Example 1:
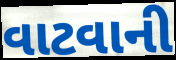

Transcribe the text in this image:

વાટવાની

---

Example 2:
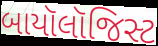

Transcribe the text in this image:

બાયૉલૉજિસ્ટ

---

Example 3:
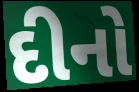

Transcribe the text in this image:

દીનો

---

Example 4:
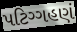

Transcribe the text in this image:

પટિગ્ગહણં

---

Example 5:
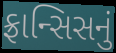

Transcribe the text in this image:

ફ્રાન્સિસનું